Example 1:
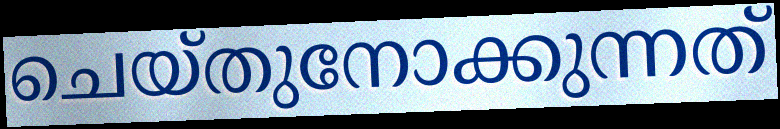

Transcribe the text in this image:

ചെയ്തുനോക്കുന്നത്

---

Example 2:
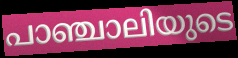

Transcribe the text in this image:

പാഞ്ചാലിയുടെ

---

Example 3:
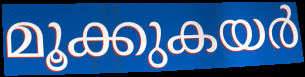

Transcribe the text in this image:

മൂക്കുകയർ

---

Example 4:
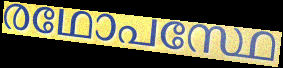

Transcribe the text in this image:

രഥോപസ്ഥേ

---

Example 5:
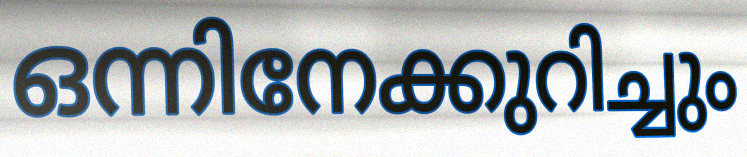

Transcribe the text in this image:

ഒന്നിനേക്കുറിച്ചും